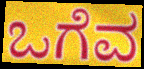
ಒಗೆವ